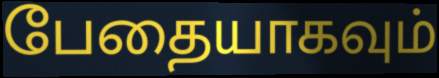
பேதையாகவும்